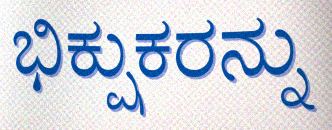
ಭಿಕ್ಷುಕರನ್ನು